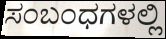
ಸಂಬಂಧಗಳಲ್ಲಿ